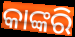
କାଙ୍କରି